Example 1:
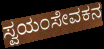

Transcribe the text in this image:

ಸ್ವಯಂಸೇವಕನ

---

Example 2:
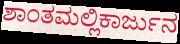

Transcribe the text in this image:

ಶಾಂತಮಲ್ಲಿಕಾರ್ಜುನ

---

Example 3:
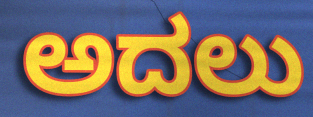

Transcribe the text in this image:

ಅದಲು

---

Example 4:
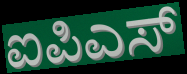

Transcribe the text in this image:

ಐಪಿಎಸ್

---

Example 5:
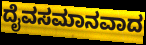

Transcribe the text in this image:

ದೈವಸಮಾನವಾದ